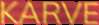
KARVE